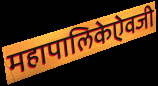
महापालिकेऐवजी